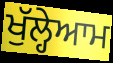
ਖੁੱਲ੍ਹੇਆਮ